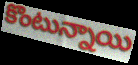
కొంటున్నాయి